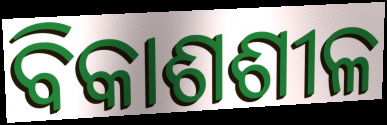
ବିକାଶଶୀଳ